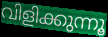
വിളിക്കുന്നൂ